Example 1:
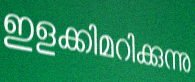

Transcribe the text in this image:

ഇളക്കിമറിക്കുന്നു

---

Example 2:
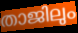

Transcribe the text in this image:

താജിലും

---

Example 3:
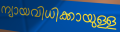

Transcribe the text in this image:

ന്യായവിധിക്കായുള്ള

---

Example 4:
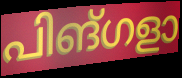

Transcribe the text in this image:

പിങ്ഗളാ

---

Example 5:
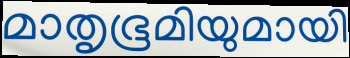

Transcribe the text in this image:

മാതൃഭൂമിയുമായി